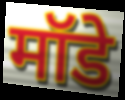
मॉडे